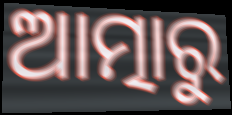
ଆତ୍ମାରୁ